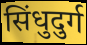
सिंधुदुर्ग